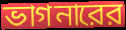
ভাগনারের